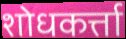
शोधकर्त्ता